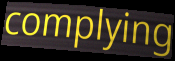
complying